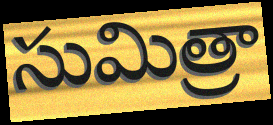
సుమిత్రా